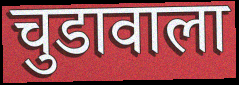
चुडावाला